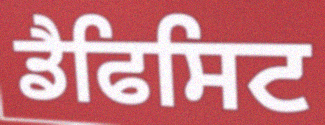
ਡੈਫਿਸਿਟ